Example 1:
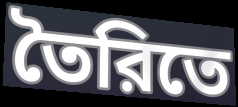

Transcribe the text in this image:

তৈরিতে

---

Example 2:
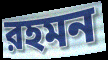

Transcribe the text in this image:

রহমন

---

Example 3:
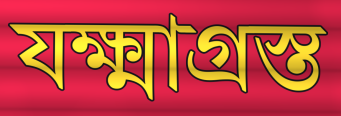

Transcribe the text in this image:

যক্ষ্মাগ্রস্ত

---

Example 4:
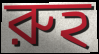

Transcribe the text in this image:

রুহ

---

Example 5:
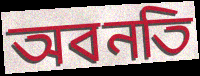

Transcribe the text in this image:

অবনতি